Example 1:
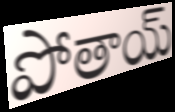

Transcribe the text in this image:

పోతాయ్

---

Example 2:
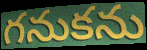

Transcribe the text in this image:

గనుకను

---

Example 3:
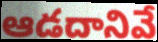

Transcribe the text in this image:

ఆడదానివే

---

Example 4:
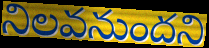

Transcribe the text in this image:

నిలవనుందని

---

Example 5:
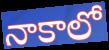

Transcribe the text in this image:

నాకాలో